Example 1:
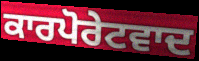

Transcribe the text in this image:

ਕਾਰਪੋਰੇਟਵਾਦ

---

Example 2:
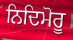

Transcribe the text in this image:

ਨਿਦਿਮੋਰੂ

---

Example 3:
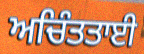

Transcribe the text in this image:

ਅਚਿੰਤਤਾਈ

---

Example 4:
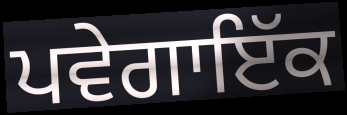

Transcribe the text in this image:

ਪਵੇਗਾਇੱਕ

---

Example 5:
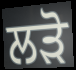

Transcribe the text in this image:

ਲੜੋ